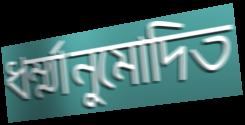
ধর্ম্মানুমোদিত